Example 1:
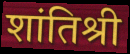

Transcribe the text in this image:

शांतिश्री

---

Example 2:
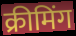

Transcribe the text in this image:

क्रीमिंग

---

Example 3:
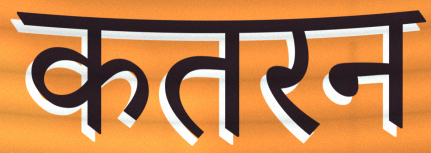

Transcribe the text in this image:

कतरन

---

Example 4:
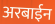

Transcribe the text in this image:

अरबाईन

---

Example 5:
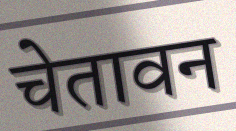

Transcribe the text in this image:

चेतावन